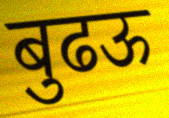
बुढऊ